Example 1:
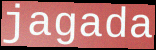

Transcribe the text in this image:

jagada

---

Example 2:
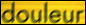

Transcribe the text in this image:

douleur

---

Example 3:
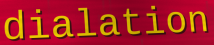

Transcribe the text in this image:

dialation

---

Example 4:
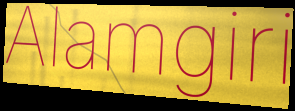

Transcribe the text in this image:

Alamgiri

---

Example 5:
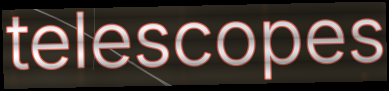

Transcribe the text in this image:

telescopes